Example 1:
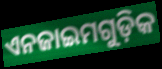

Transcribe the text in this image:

ଏନଜାଇମଗୁଡ଼ିକ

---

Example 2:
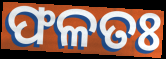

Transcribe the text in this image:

ଫଳତଃ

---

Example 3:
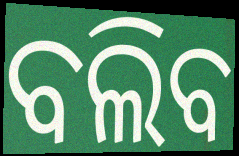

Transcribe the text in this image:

ବଲିବ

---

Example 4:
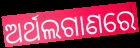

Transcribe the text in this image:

ଅର୍ଥଲଗାଣରେ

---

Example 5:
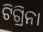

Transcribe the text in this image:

ଟିଗ୍ରିନା